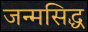
जन्‍मसिद्ध